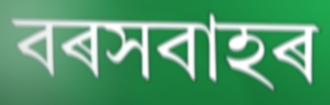
বৰসবাহৰ